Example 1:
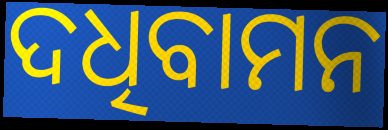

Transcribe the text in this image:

ଦଧିବାମନ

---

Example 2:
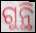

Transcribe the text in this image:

ଗୁନ୍ଥି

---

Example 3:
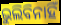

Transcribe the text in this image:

ଭୁଲିବିନାହିଁ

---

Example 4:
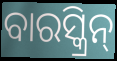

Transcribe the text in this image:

ବାରସ୍କ୍ରିନ୍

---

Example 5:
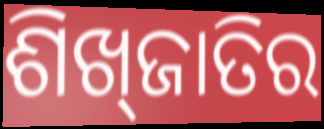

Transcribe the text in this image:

ଶିଖ୍‌ଜାତିର